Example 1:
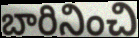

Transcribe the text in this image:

బారినించి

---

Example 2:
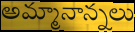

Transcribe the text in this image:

అమ్మానాన్నలు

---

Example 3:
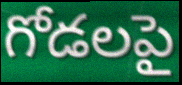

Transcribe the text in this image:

గోడలపై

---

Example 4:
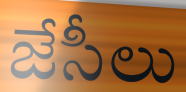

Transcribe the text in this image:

జేసీలు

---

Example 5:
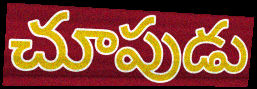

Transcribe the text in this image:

చూపుడు